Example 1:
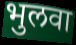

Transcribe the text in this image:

भुलवा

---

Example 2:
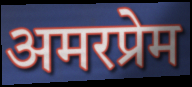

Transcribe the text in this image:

अमरप्रेम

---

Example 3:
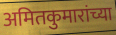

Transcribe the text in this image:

अमितकुमारांच्या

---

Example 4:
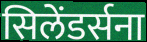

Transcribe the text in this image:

सिलेंडर्सना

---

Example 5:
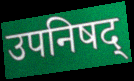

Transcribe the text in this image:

उपनिषद्